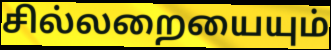
சில்லறையையும்